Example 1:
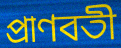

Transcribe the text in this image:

প্রাণবতী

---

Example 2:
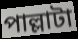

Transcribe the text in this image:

পাল্লাটা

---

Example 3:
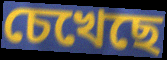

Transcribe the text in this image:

চেখেছে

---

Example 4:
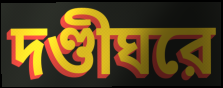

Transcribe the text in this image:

দণ্ডীঘরে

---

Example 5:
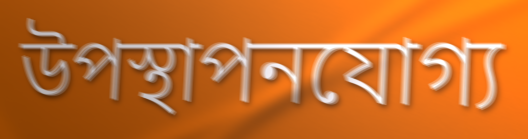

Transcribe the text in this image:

উপস্থাপনযোগ্য